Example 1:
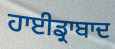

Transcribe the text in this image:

ਹਾਈਡ੍ਰਾਬਾਦ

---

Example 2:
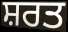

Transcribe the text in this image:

ਸ਼ਰਤ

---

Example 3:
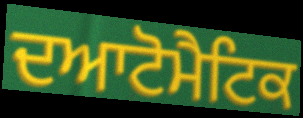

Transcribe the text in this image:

ਦਆਟੋਮੈਟਿਕ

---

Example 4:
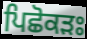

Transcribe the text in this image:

ਪਿਛੋਕੜਃ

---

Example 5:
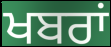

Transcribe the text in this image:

ਖਬਰਾਂ